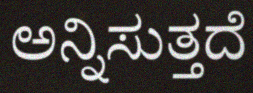
ಅನ್ನಿಸುತ್ತದೆ